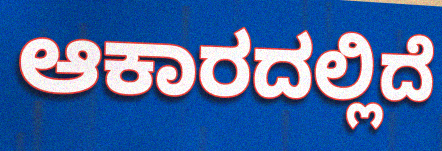
ಆಕಾರದಲ್ಲಿದೆ